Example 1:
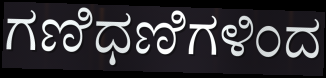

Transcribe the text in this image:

ಗಣಿಧಣಿಗಳಿಂದ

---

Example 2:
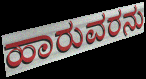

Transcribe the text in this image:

ಹಾರುವರನು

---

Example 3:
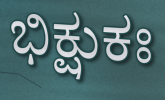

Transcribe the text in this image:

ಭಿಕ್ಷುಕಃ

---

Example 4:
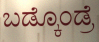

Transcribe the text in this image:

ಬಡ್ಕೊಂಡ್ರೆ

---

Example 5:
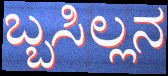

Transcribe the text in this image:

ಬ್ಬಸಿಲ್ಲನ